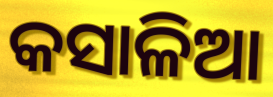
କସାଳିଆ